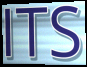
ITS